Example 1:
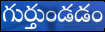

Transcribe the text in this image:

గుర్తుండడం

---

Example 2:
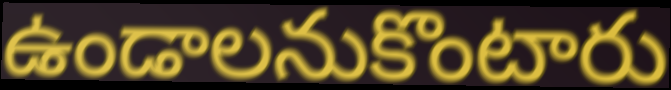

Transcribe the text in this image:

ఉండాలనుకొంటారు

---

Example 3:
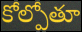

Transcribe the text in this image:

కోల్పోతూ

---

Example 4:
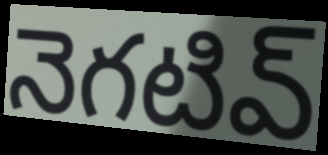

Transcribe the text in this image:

నెగటివ్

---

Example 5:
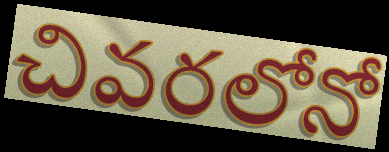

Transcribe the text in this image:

చివరలోనో